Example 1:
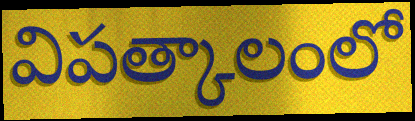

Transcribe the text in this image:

విపత్కాలంలో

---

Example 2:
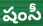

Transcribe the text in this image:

షంసీ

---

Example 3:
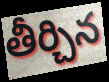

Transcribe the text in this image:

తీర్చిన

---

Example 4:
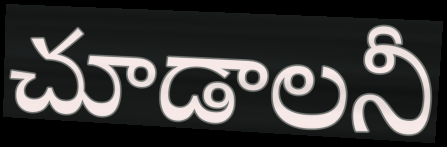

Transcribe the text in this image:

చూడాలనీ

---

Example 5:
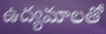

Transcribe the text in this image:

ఉద్యమాలతో